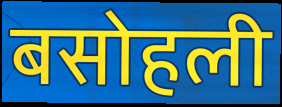
बसोहली